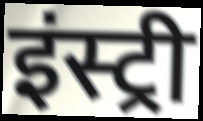
इंस्ट्री